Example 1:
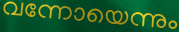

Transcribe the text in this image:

വന്നോയെന്നും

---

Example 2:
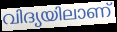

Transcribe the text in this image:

വിദ്യയിലാണ്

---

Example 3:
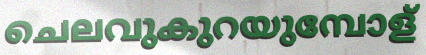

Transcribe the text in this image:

ചെലവുകുറയുമ്പോള്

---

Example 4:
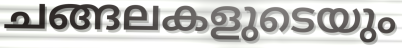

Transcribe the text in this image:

ചങ്ങലകളുടെയും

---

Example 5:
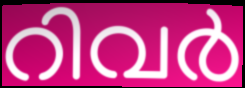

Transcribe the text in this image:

റിവർ